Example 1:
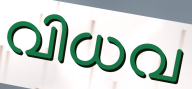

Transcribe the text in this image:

വിധവ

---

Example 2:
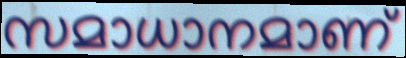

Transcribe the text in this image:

സമാധാനമാണ്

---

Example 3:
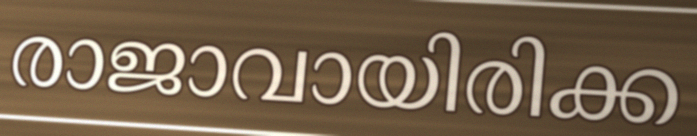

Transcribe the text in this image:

രാജാവായിരിക്ക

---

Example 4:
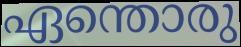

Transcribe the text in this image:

ഏന്തൊരു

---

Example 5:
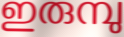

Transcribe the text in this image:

ഇരുമ്പു